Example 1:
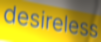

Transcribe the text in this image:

desireless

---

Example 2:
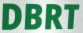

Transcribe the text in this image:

DBRT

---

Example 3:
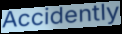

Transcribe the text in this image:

Accidently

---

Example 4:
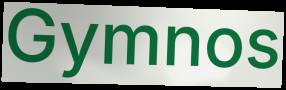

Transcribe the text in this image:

Gymnos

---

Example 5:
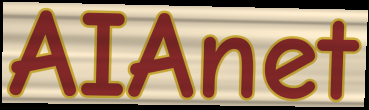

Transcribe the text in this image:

AIAnet